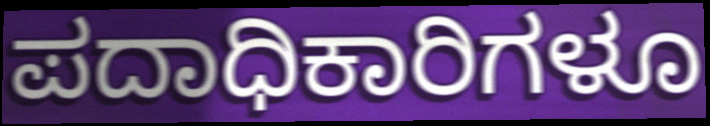
ಪದಾಧಿಕಾರಿಗಳೂ